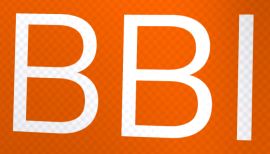
BBI